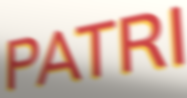
PATRI